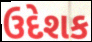
ઉદેશક